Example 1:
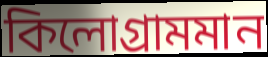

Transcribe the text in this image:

কিলোগ্ৰামমান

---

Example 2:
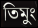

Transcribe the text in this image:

তিমুং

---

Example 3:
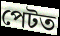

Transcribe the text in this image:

পেটত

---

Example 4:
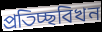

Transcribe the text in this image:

প্ৰতিচ্ছবিখন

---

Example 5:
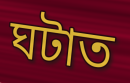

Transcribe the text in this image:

ঘটাত